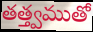
తత్త్వముతో